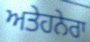
ਅਤੇਹਨੇਰਾ